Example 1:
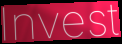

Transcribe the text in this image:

Invest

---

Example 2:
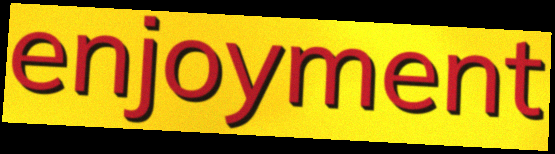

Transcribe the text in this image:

enjoyment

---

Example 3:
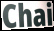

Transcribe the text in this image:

Chai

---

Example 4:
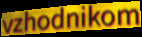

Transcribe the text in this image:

vzhodnikom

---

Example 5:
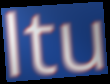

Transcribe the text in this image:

Itu